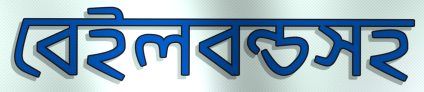
বেইলবন্ডসহ